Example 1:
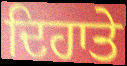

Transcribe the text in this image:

ਦਿਹਾਤੇ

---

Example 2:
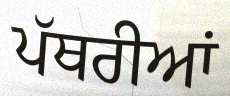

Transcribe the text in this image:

ਪੱਥਰੀਆਂ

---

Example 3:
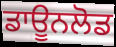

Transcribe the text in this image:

ਡਾਊਨਲੋਡ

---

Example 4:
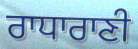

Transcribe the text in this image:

ਰਾਧਾਰਾਣੀ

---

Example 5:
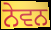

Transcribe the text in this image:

ਨੇਵਨ